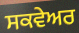
ਸਕਵੇਅਰ